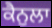
ਕੈਨੁਲਾ